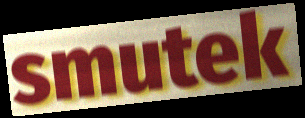
smutek